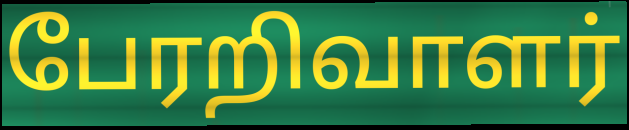
பேரறிவாளர்